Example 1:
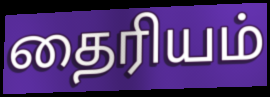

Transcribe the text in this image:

தைரியம்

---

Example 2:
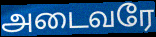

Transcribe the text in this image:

அடைவரே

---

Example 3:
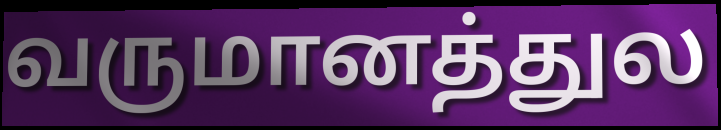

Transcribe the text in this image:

வருமானத்துல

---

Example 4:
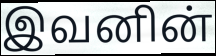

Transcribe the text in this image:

இவனின்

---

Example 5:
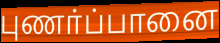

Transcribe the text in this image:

புணர்ப்பானை